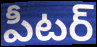
పీటర్